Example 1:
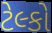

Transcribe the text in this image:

ટેલ્કો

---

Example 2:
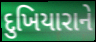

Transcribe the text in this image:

દુખિયારાને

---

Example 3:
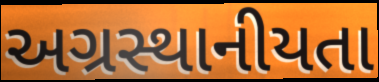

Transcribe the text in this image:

અગ્રસ્થાનીયતા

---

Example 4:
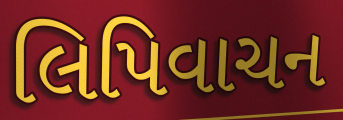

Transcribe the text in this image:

લિપિવાચન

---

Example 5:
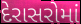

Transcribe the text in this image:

દેરાસરોમાં